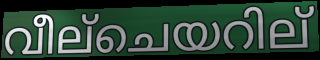
വീല്ചെയറില്